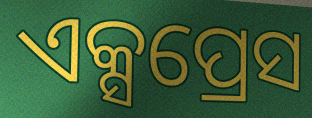
ଏକ୍ସପ୍ରେସ